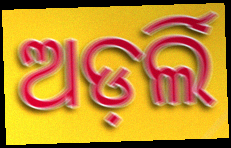
ଅଡ଼ର୍ଲି